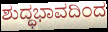
ಶುದ್ಧಭಾವದಿಂದ